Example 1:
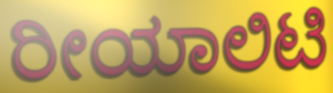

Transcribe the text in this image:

ರೀಯಾಲಿಟಿ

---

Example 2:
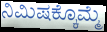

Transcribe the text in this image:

ನಿಮಿಷಕ್ಕೊಮ್ಮೆ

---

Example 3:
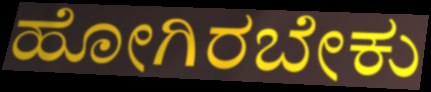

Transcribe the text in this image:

ಹೋಗಿರಬೇಕು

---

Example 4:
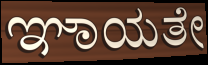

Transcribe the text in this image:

ಞಾಯತೇ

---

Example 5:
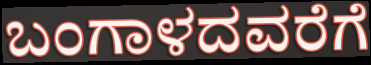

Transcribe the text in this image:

ಬಂಗಾಳದವರೆಗೆ